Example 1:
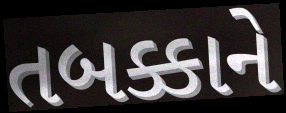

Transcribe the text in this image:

તબક્કાને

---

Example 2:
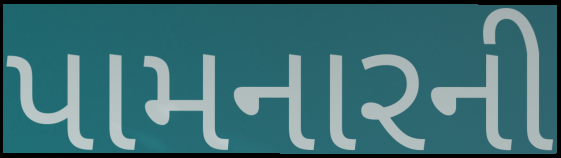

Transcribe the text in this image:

પામનારની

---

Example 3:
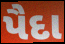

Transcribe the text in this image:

પૈદા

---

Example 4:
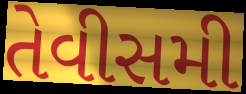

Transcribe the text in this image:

તેવીસમી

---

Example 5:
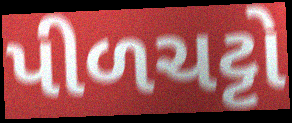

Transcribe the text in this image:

પીળચટ્ટો